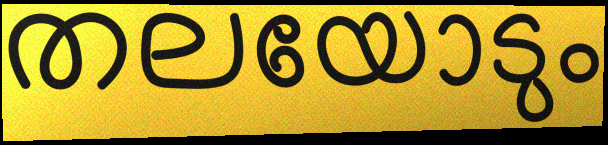
തലയോടും